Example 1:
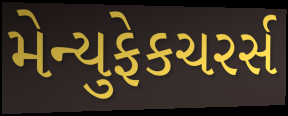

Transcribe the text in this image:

મેન્યુફેકચરર્સ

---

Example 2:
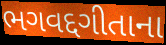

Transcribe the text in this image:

ભગવદ્દગીતાના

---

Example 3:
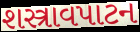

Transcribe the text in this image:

શસ્ત્રાવપાટન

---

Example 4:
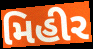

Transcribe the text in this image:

મિહીર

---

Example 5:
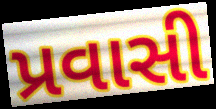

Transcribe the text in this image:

પ્રવાસી